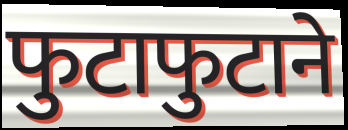
फुटाफुटाने